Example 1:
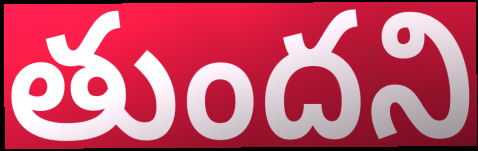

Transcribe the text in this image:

తుందని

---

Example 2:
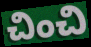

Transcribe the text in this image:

చించి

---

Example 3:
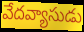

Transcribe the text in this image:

వేదవ్యాసుడు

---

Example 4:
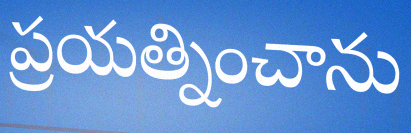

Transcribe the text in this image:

ప్రయత్నించాను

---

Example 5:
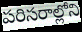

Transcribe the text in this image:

పరిసరాల్లోని